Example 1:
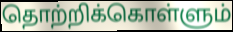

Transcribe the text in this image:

தொற்றிக்கொள்ளும்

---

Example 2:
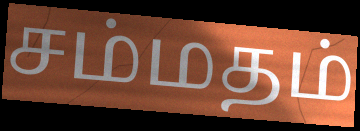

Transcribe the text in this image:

சம்மதம்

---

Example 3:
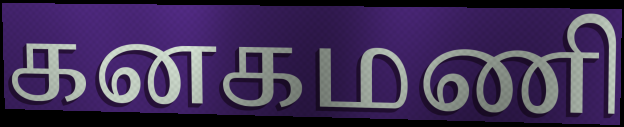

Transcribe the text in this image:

கனகமணி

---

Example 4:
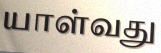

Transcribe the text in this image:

யாள்வது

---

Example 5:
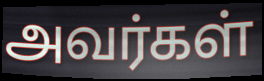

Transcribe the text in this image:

அவர்கள்